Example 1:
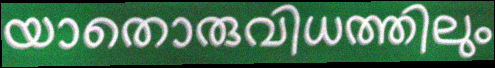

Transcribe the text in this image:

യാതൊരുവിധത്തിലും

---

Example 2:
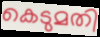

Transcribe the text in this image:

കെടുമതി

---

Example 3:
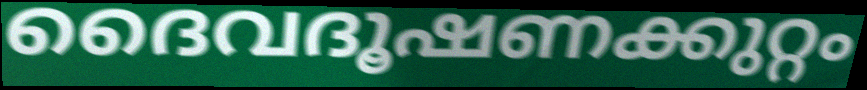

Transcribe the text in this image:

ദൈവദൂഷണക്കുറ്റം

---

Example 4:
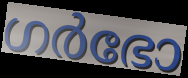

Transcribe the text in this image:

ഗർഭോ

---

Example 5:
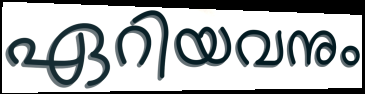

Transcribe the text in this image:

ഏറിയവനും